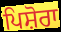
ਪਿਸ਼ੋਰਾ